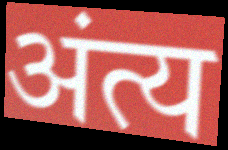
अंत्य